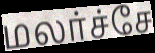
மலர்ச்சே